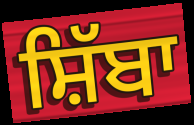
ਸ਼ਿੱਬਾ